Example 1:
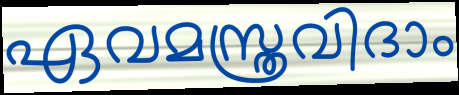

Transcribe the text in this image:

ഏവമസ്ത്രവിദാം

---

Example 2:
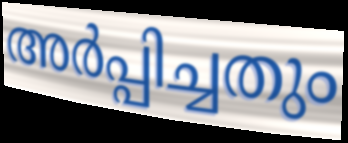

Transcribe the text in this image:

അർപ്പിച്ചതും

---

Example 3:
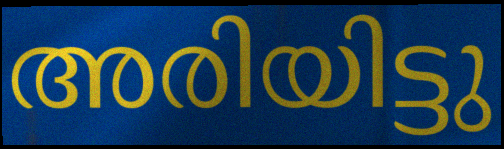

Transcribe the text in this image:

അരിയിട്ടു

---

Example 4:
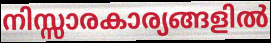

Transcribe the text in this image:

നിസ്സാരകാര്യങ്ങളിൽ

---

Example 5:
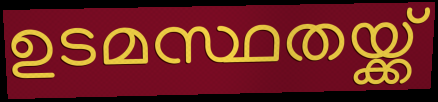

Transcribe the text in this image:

ഉടമസ്ഥതയ്ക്ക്